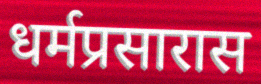
धर्मप्रसारास